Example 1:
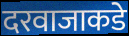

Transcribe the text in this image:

दरवाजाकडे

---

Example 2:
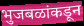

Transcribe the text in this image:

भुजबळांकडून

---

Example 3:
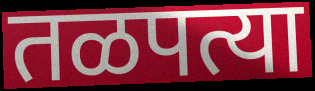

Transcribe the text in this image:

तळपत्या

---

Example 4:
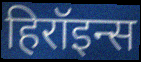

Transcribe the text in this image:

हिरॉइन्स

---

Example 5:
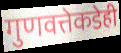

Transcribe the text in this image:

गुणवत्तेकडेही